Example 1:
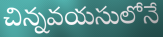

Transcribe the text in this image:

చిన్నవయసులోనే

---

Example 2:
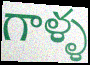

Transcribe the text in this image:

గాళ్ళ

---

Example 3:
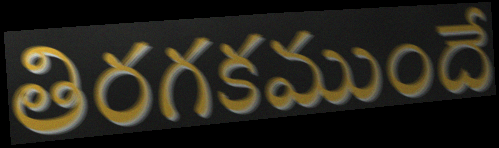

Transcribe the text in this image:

తిరగకముందే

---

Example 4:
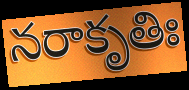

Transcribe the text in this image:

నరాకృతిః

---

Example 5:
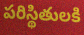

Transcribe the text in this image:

పరిస్థితులకి